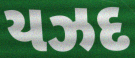
યઝદ